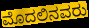
ಮೊದಲಿನವರು